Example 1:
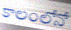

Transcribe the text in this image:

కాలంలోనో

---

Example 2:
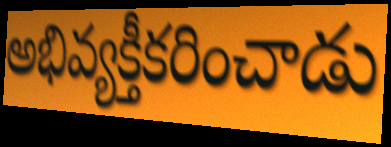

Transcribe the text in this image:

అభివ్యక్తీకరించాడు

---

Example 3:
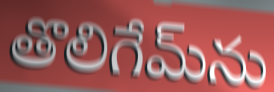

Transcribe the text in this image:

తొలిగేమ్‌ను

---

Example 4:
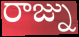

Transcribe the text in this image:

రాజ్ను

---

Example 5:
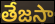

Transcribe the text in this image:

తేజసా